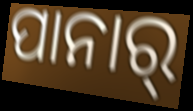
ପାନାର୍